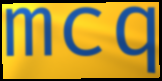
mcq